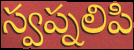
స్వప్నలిపి